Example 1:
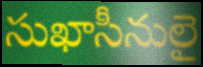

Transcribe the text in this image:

సుఖాసీనులై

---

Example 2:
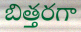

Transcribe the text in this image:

బిత్తరగా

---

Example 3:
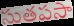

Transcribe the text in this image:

సుతపసా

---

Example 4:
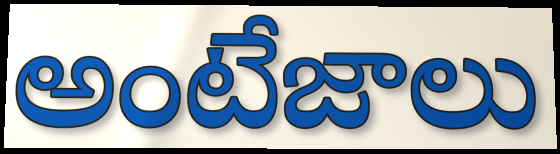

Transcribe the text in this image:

అంటేజాలు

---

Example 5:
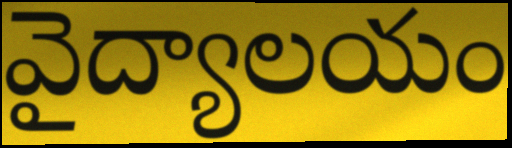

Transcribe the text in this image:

వైద్యాలయం